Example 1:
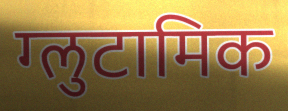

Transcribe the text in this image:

ग्लुटामिक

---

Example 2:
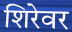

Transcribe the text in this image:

शिरेवर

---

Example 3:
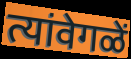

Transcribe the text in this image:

त्यांवेगळें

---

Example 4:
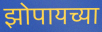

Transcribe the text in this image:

झोपायच्या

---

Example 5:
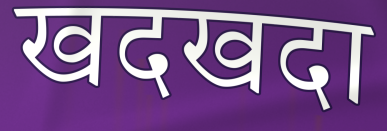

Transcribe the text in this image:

खदखदा